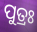
ପୁତ୍ରଃ